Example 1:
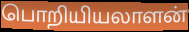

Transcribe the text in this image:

பொறியியலாளன்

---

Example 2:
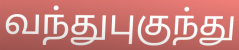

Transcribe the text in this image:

வந்துபுகுந்து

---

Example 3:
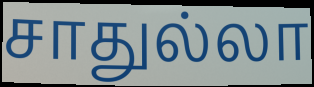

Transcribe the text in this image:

சாதுல்லா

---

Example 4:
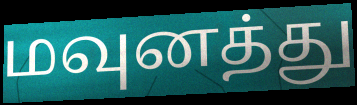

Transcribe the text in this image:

மவுனத்து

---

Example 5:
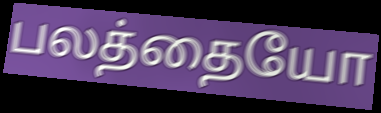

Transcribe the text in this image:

பலத்தையோ